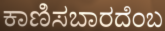
ಕಾಣಿಸಬಾರದೆಂಬ